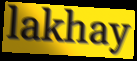
lakhay